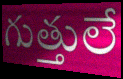
గుత్తులే